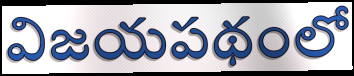
విజయపథంలో